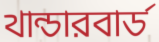
থান্ডারবার্ড